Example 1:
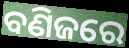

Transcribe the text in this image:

ବଣିଜରେ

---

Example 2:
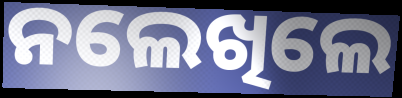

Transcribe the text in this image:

ନଲେଖିଲେ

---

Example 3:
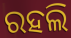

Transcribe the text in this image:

ରହଲି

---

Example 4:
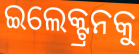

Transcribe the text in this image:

ଇଲେକ୍ଟ୍ରନକୁ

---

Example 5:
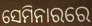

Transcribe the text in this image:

ସେମିନାରରେ